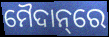
ମୈଦାନ୍‌ରେ